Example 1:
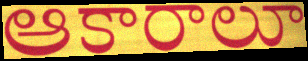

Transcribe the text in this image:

ఆకారాలూ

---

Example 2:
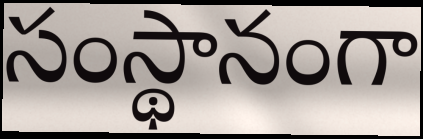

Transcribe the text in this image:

సంస్థానంగా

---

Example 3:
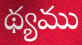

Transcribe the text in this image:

థ్యము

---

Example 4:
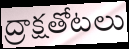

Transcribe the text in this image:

ద్రాక్షతోటలు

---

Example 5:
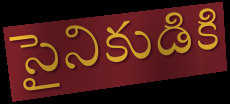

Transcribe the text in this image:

సైనికుడికి